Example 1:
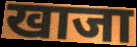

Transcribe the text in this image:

खाजा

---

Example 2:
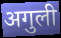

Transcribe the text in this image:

अगुली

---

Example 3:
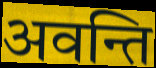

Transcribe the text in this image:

अवन्ति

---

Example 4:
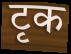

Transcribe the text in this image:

टृक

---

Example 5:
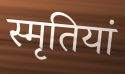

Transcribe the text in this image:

स्मृतियां